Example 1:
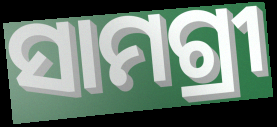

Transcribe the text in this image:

ସାମଗ୍ରୀ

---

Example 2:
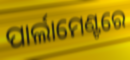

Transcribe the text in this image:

ପାର୍ଲାମେଣ୍ଟରେ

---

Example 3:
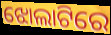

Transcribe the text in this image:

ଝୋଲାଟିରେ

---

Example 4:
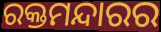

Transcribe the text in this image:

ରକ୍ତମନ୍ଦାରର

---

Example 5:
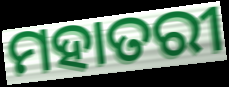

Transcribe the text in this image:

ମହାତରୀ